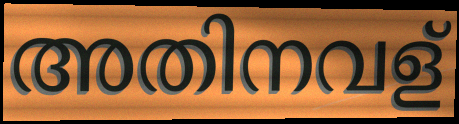
അതിനവള്